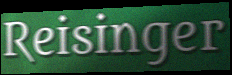
Reisinger